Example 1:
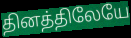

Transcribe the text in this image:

தினத்திலேயே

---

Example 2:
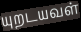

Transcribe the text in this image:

யுறடயவள்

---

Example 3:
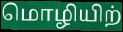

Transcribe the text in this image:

மொழியிற்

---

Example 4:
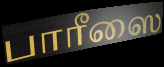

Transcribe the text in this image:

பாரீஸை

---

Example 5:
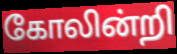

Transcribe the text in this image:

கோலின்றி